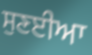
ਸੁਣਈਆ